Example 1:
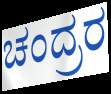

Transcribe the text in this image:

ಚಂದ್ರರ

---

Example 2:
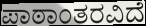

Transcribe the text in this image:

ಪಾಠಾಂತರವಿದೆ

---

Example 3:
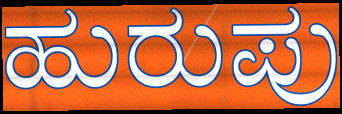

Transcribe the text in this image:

ಹುರುಪು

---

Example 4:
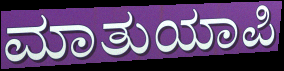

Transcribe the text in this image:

ಮಾತುಯಾಪಿ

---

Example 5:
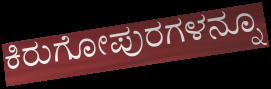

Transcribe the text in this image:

ಕಿರುಗೋಪುರಗಳನ್ನೂ